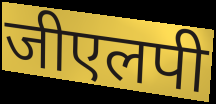
जीएलपी